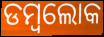
ଡମ୍ବଲୋକ